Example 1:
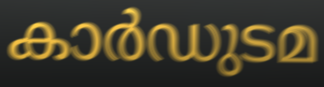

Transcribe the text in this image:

കാർഡുടമ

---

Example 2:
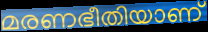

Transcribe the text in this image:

മരണഭീതിയാണ്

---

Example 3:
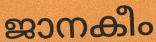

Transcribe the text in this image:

ജാനകീം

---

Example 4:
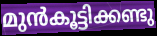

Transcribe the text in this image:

മുൻകൂട്ടിക്കണ്ടു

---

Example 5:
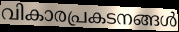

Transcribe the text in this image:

വികാരപ്രകടനങ്ങൾ